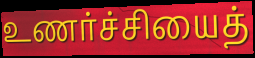
உணர்ச்சியைத்